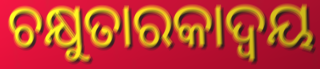
ଚକ୍ଷୁତାରକାଦ୍ଵୟ